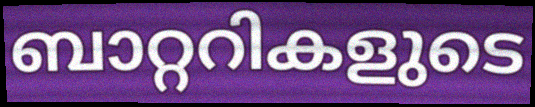
ബാറ്ററികളുടെ